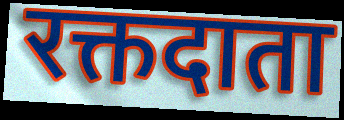
रक्तदाता